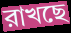
রাখছে